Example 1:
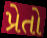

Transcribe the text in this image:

પ્રેતો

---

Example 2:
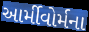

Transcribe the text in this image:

આર્મીવોર્મના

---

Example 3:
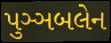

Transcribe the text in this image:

પુઞ્ઞબલેન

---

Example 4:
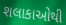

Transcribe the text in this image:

શલાકાઓથી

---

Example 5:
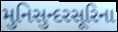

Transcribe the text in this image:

મુનિસુન્દરસૂરિના